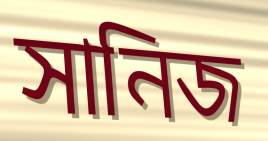
সানিজ